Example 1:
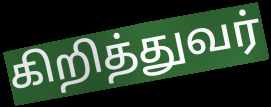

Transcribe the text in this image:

கிறித்துவர்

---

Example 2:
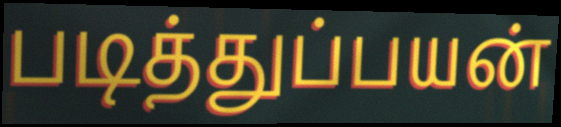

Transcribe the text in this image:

படித்துப்பயன்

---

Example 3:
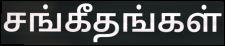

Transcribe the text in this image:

சங்கீதங்கள்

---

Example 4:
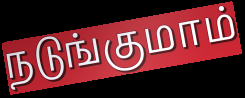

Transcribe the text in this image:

நடுங்குமாம்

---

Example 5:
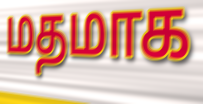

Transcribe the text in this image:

மதமாக